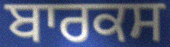
ਬਾਰਕਸ